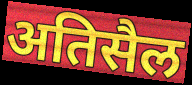
अतिसैल